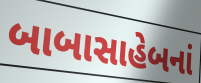
બાબાસાહેબનાં